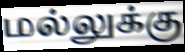
மல்லுக்கு